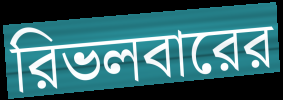
রিভলবারের